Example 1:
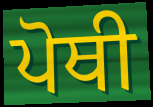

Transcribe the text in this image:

ਪੋਥੀ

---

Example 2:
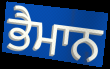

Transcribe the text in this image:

ਭੈਮਾਨ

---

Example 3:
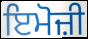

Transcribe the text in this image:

ਇਮੋਜ਼ੀ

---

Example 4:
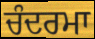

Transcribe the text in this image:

ਚੰਦਰਮਾ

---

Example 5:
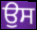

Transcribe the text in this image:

ਉਸ